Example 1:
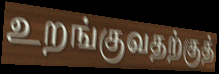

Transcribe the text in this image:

உறங்குவதற்குத்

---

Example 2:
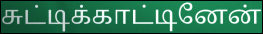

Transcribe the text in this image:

சுட்டிக்காட்டினேன்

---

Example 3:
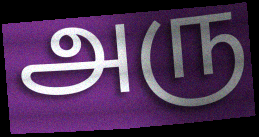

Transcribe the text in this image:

அரு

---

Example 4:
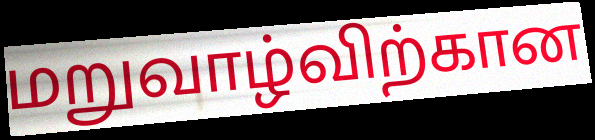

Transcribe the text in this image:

மறுவாழ்விற்கான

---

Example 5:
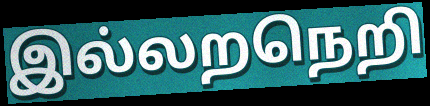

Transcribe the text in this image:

இல்லறநெறி